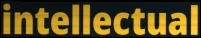
intellectual